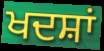
ਖਦਸ਼ਾਂ